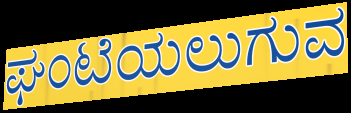
ಘಂಟೆಯಲುಗುವ